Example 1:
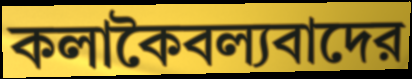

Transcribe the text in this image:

কলাকৈবল্যবাদের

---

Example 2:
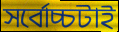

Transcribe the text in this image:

সর্বোচ্চটাই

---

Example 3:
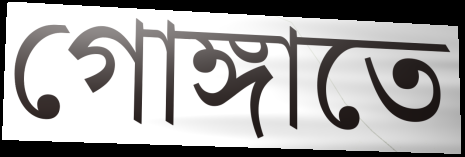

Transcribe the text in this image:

গোঙ্গাতে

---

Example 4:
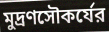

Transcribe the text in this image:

মুদ্রণসৌকর্যের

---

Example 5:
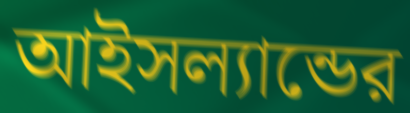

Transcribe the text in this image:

আইসল্যান্ডের